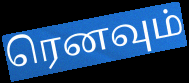
ரெனவும்